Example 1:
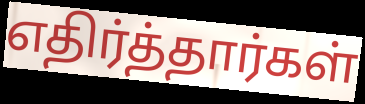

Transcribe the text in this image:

எதிர்த்தார்கள்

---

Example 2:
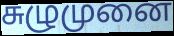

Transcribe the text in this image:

சுழுமுனை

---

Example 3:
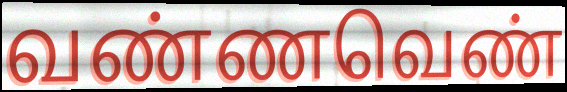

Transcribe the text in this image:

வண்ணவெண்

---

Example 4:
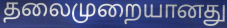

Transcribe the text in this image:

தலைமுறையானது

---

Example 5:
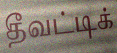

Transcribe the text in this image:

தீவட்டிக்